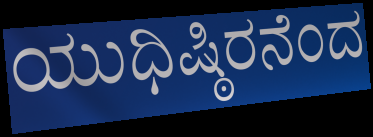
ಯುಧಿಷ್ಠಿರನೆಂದ